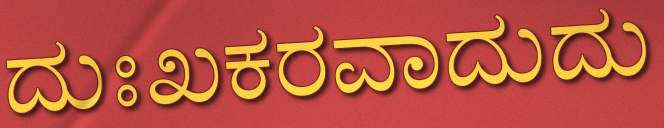
ದುಃಖಕರವಾದುದು